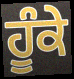
ਹੂੰਕੇ